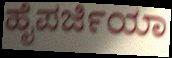
ಹೈಪರ್ಜಿಯಾ